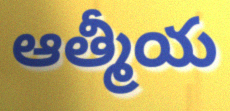
ఆత్మీయ